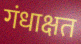
गंधाक्षत